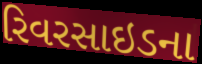
રિવરસાઇડના